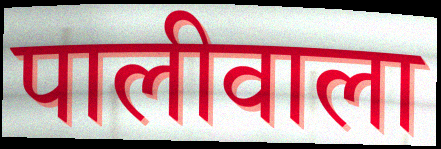
पालीवाला